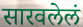
सारवलेलं